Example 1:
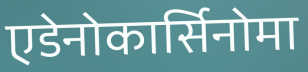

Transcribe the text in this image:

एडेनोकार्सिनोमा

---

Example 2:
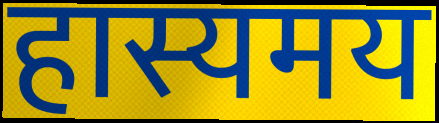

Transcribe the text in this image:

हास्यमय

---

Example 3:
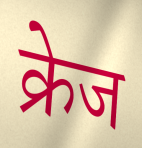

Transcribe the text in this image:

क्रेज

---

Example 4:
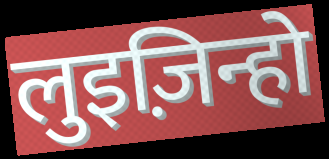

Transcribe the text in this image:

लुइज़िन्हो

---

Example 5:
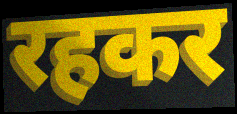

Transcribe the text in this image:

रहकर